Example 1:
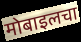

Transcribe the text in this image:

मोबाइलचा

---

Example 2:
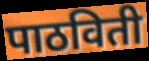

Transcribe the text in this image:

पाठविती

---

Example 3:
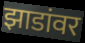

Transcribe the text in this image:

झाडांवर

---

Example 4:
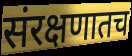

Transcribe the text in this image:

संरक्षणातच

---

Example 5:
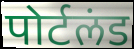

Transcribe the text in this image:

पोर्टलंड